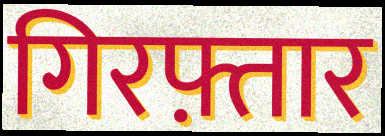
गिरफ़्तार